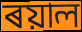
ৰয়াল